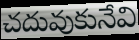
చదువుకునేవి